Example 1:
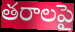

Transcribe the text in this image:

తరాలపై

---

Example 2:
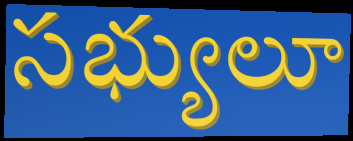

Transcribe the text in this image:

సభ్యులూ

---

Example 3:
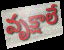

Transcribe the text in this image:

వృక్షాలే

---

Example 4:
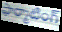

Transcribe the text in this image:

ఫార్మాటింగ్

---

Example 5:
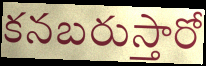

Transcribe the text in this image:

కనబరుస్తారో